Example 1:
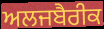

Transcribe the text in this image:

ਅਲਜਬੈਰੀਕ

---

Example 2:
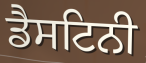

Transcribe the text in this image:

ਡੈਸਟਿਨੀ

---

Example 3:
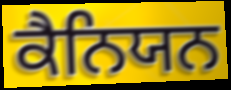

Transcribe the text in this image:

ਕੈਨਿਯਨ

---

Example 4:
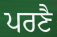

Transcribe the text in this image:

ਪਰਣੈ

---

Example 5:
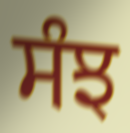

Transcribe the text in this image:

ਸੰਝ